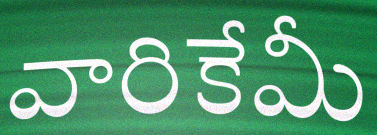
వారికేమీ